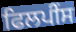
ਫਿਲਪੀਂਸ